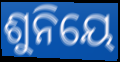
ଶୁନିୟେ